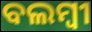
ବଲମ୍ୱୀ